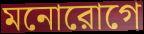
মনোরোগে